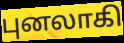
புனலாகி